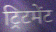
ट्रिटमेंट